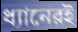
ধ্যানেরই